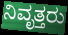
ನಿವೃತ್ತರು